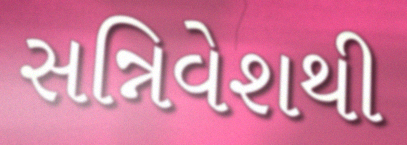
સન્નિવેશથી